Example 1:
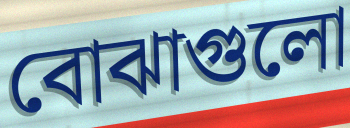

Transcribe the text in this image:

বোঝাগুলো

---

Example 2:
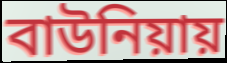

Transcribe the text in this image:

বাউনিয়ায়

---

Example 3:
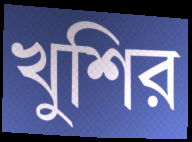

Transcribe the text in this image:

খুশির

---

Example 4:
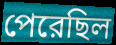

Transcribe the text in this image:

পেরেছিল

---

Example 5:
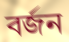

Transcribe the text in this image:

বর্জন